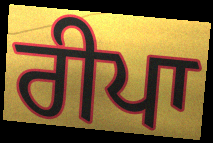
ਰੀਪਾ